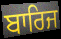
ਬਾਰਿਜ